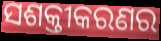
ସଶକ୍ତୀକରଣର